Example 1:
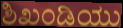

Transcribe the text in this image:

ಶಿಖಂಡಿಯು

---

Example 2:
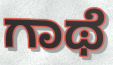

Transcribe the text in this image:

ಗಾಥೆ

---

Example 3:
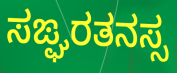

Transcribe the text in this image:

ಸಙ್ಘರತನಸ್ಸ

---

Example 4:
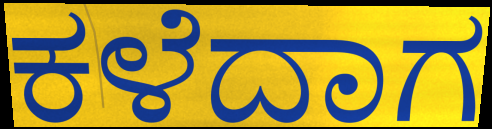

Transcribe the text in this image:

ಕಳೆದಾಗ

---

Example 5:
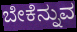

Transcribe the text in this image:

ಬೇಕೆನ್ನುವ